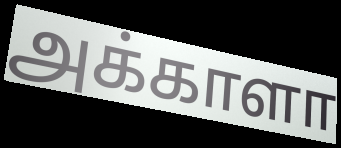
அக்காளா